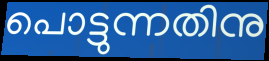
പൊട്ടുന്നതിനു